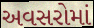
અવસરોમાં